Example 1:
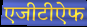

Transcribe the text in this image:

एजीटीऐफ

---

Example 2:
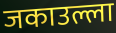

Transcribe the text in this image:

जकाउल्ला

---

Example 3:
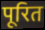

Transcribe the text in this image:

पूरित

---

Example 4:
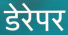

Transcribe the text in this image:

डेरेपर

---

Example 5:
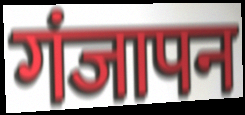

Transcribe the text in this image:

गंजापन